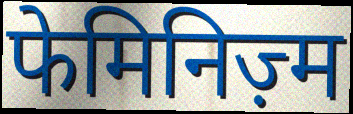
फेमिनिज़्म